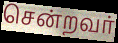
சென்றவர்